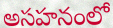
అసహనంలో